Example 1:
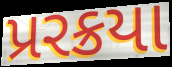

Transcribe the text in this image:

પ્રરક્રયા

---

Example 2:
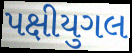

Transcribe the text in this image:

પક્ષીયુગલ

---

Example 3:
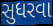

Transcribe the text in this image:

સુધરવા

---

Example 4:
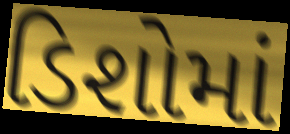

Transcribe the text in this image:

ડિશોમાં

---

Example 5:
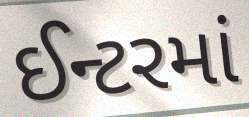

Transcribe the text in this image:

ઈન્ટરમાં